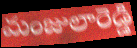
మంజులారెడ్డి